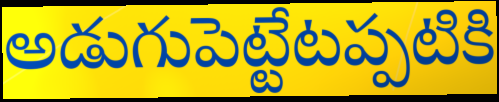
అడుగుపెట్టేటప్పటికి